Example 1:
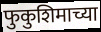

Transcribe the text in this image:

फुकुशिमाच्या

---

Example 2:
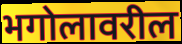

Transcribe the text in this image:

भगोलावरील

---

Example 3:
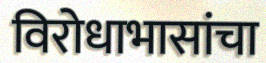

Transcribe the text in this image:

विरोधाभासांचा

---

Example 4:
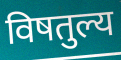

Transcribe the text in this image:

विषतुल्य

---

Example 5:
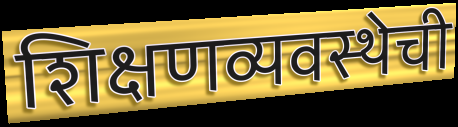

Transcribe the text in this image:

शिक्षणव्यवस्थेची